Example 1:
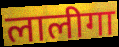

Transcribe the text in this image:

लालीगा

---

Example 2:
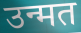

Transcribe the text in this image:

उन्मत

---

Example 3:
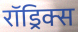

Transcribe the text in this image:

रॉड्रिक्स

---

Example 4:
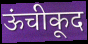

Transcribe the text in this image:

ऊंचीकूद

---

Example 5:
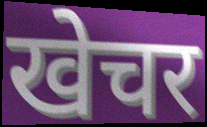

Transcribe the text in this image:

खेचर